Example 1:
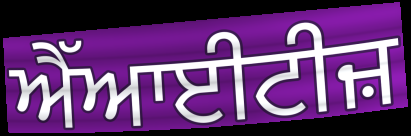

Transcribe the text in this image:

ਐੱਆਈਟੀਜ਼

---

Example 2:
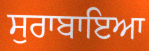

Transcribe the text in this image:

ਸੁਰਾਬਾਇਆ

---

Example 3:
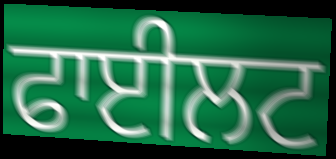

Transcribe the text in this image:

ਫਾਈਲਟ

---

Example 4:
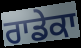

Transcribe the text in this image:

ਰਾਡੇਕਾ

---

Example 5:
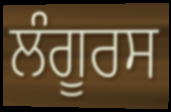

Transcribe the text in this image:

ਲੰਗੂਰਸ